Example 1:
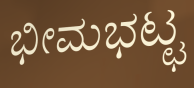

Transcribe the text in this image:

ಭೀಮಭಟ್ಟ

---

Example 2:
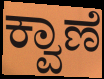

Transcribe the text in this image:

ಕ್ವಾಣೆ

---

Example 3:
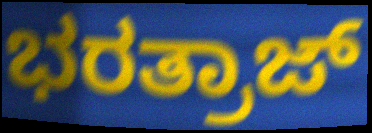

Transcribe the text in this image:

ಭರತ್ರಾಜ್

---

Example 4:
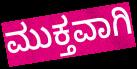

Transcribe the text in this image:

ಮುಕ್ತವಾಗಿ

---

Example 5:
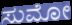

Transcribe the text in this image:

ಸುಮೋ